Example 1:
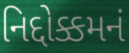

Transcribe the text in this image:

નિદ્દોક્કમનં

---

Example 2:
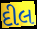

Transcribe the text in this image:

દીલ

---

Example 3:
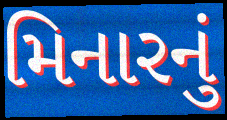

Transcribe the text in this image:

મિનારનું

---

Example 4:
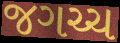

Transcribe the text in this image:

જગચ્ચ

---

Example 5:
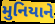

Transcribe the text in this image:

મુનિયાને